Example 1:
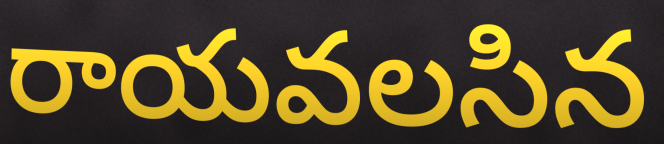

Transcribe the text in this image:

రాయవలసిన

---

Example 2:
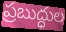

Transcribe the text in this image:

ప్రబుద్ధుల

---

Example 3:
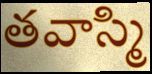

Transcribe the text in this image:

తవాస్మి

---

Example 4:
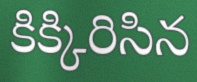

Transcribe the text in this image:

కిక్కిరిసిన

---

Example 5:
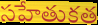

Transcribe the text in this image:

సహేతుకత